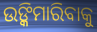
ଉଙ୍କିମାରିବାକୁ